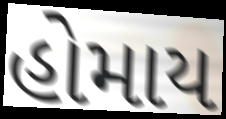
હોમાય